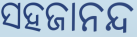
ସହଜାନନ୍ଦ